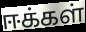
ஈக்கள்